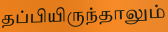
தப்பியிருந்தாலும்